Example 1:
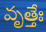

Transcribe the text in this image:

వృత్తేః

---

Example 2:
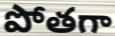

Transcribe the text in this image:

పోతగా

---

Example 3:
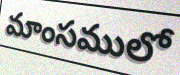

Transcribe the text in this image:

మాంసములో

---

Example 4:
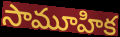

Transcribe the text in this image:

సామూహిక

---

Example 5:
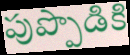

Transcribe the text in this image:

పుప్పొడికి